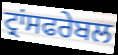
ਟ੍ਰਾਂਸਫਰੇਬਲ